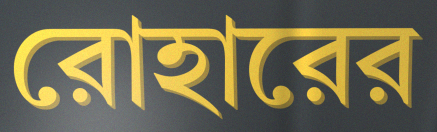
রোহারের